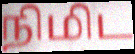
நிமிட